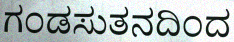
ಗಂಡಸುತನದಿಂದ